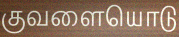
குவளையொடு